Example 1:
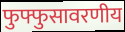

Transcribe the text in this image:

फुफ्फुसावरणीय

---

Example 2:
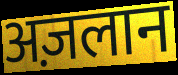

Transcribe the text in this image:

अज़लान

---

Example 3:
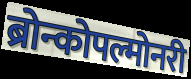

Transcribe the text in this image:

ब्रोन्कोपल्मोनरी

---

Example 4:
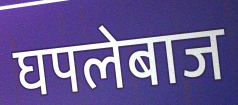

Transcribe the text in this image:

घपलेबाज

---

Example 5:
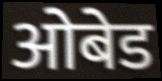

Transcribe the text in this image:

ओबेड